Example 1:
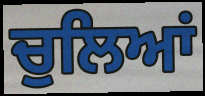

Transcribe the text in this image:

ਚੁਲਿਆਂ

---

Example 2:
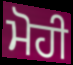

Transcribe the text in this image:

ਮੋਹੀ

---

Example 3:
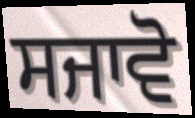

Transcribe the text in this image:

ਸਜਾਵੋ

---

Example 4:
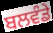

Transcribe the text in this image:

ਬਲਵੰਡੇ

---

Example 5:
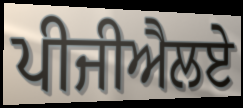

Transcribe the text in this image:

ਪੀਜੀਐਲਏ